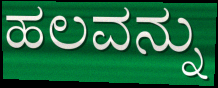
ಹಲವನ್ನು